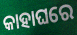
କାହାଘରେ